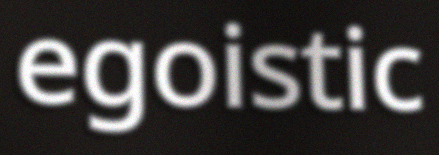
egoistic